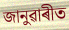
জানুৱাৰীত